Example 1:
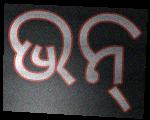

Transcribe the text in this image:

ଭନ୍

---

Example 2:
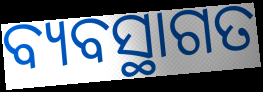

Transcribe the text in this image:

ବ୍ଯବସ୍ଥାଗତ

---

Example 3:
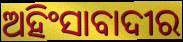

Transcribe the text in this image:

ଅହିଂସାବାଦୀର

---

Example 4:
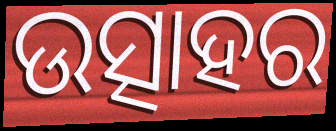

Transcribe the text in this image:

ଉତ୍ସାହର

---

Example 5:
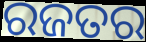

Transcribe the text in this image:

ରଜତର